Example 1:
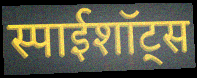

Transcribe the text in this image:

स्पाईशॉट्स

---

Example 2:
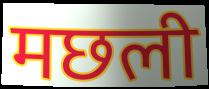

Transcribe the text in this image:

मछली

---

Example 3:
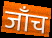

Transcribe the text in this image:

जाँच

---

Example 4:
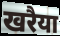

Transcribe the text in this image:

खरैया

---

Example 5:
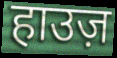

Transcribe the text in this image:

हाउज़